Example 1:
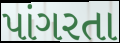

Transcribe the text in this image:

પાંગરતા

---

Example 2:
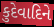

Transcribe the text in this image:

કુદેવાદિને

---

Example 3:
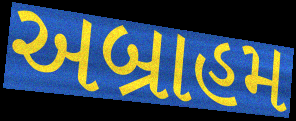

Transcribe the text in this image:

અબ્રાહમ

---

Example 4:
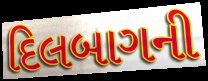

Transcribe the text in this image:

દિલબાગની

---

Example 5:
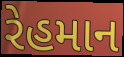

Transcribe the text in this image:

રેહમાન